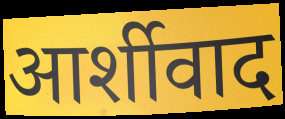
आर्शीवाद